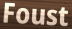
Foust